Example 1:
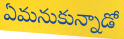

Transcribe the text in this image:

ఏమనుకున్నాడో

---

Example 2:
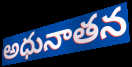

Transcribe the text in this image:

అధునాతన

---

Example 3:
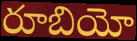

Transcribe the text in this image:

రూబియో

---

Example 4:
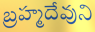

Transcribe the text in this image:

బ్రహ్మదేవుని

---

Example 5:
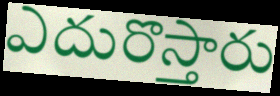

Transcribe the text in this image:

ఎదురొస్తారు